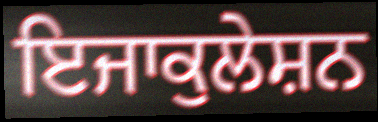
ਇਜਾਕੁਲੇਸ਼ਨ